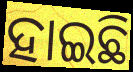
ହାଇଛି